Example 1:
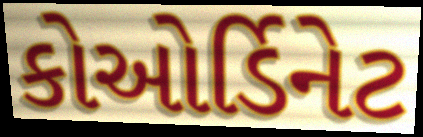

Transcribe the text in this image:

કોઓર્ડિનેટ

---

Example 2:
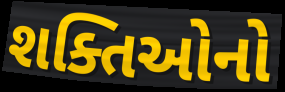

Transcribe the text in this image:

શક્તિઓનો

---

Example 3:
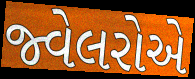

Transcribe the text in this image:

જ્વેલરોએ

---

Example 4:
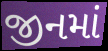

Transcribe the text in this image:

જીનમાં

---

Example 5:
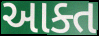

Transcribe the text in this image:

આક્ત